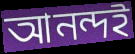
আনন্দই